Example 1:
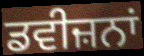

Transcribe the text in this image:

ਡਵੀਜ਼ਨਾਂ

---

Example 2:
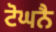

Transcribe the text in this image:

ਟੋਘਨੈ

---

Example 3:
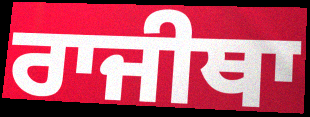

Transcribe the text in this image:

ਰਾਜੀਥਾ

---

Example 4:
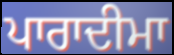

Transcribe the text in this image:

ਪਾਰਾਦੀਮਾ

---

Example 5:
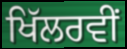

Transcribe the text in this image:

ਖਿੱਲਰਵੀਂ